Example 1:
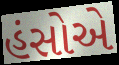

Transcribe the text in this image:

હંસોએ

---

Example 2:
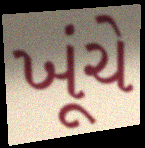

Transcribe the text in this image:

ખૂંચે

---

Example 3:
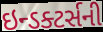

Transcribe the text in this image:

ઇન્ડક્ટર્સની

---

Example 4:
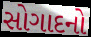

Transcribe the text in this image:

સોગાદનો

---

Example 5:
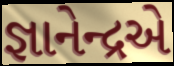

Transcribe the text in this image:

જ્ઞાનેન્દ્રએ